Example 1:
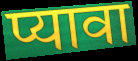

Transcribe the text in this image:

प्यावा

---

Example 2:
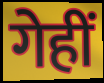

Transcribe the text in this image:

गेहीं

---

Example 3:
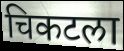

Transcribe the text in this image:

चिकटला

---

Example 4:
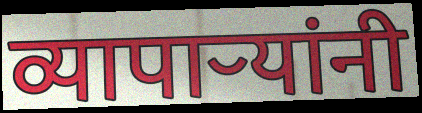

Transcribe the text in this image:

व्यापाऱ्यांनी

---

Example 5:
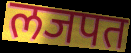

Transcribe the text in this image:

लजपत